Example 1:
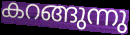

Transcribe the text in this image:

കറങ്ങുന്നു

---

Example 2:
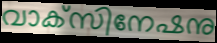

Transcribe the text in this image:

വാക്‌സിനേഷനു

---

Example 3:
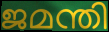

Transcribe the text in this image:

ജമന്തി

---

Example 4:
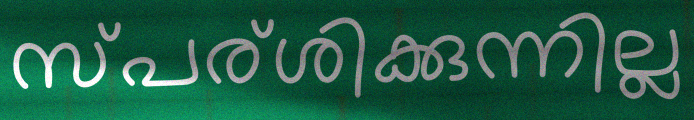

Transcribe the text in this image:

സ്പര്ശിക്കുന്നില്ല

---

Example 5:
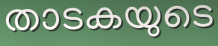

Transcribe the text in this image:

താടകയുടെ